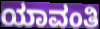
ಯಾವಂತಿ